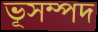
ভূসম্পদ